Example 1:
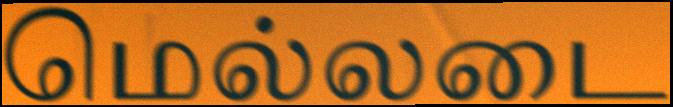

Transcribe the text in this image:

மெல்லடை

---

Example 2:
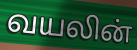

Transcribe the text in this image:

வயலின்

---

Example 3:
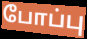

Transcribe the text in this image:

போப்பு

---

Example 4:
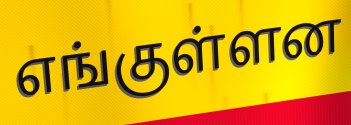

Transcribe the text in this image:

எங்குள்ளன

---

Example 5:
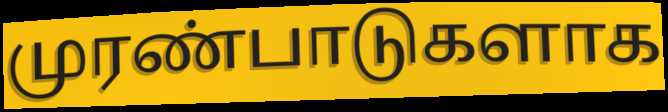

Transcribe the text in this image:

முரண்பாடுகளாக